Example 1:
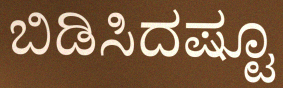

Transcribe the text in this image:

ಬಿಡಿಸಿದಷ್ಟೂ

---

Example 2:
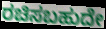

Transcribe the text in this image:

ರಚಿಸಬಹುದೇ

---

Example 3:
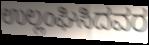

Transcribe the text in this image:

ಉಲ್ಲಂಘಿಸಿದವರ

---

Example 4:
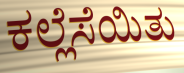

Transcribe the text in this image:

ಕಲ್ಲೆಸೆಯಿತು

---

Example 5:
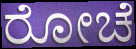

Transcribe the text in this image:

ರೋಚೆ